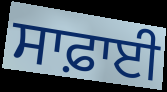
ਸਾਫ਼ਾਈ